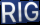
RIG